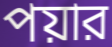
পয়ার